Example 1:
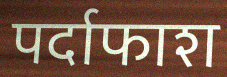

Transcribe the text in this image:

पर्दाफाश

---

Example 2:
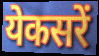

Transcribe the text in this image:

येकसरें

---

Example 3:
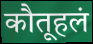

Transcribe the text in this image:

कौतूहलं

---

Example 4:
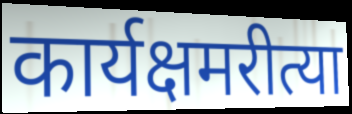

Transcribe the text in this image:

कार्यक्षमरीत्या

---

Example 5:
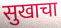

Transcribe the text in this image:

सुखाचा